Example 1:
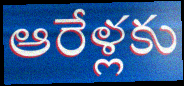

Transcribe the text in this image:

ఆరేళ్లకు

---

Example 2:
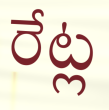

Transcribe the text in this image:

రేట్ల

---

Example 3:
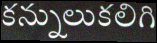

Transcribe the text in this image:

కన్నులుకలిగి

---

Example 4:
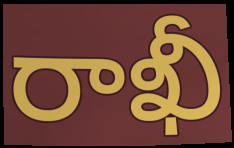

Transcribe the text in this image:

రాఖీ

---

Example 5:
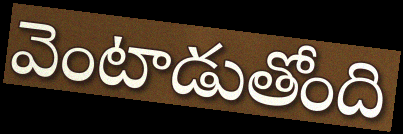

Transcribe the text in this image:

వెంటాడుతోంది